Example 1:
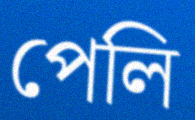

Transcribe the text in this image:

পেলি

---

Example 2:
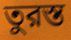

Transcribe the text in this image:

তুরস্ত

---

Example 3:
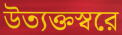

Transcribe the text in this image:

উত্যক্তস্বরে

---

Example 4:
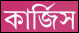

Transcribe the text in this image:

কার্জিস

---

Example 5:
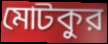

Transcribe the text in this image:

মোটকুর